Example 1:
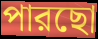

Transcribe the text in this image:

পারছো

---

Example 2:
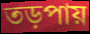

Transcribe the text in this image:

তড়পায়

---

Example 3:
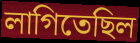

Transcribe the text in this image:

লাগিতেছিল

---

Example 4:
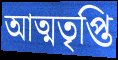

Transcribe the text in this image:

আত্মতৃপ্তি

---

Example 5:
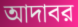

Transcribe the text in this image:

আদাবর